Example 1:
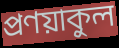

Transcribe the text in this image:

প্রণয়াকুল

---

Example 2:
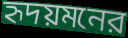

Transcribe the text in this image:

হৃদয়মনের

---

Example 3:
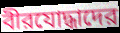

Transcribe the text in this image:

বীরযোদ্ধাদের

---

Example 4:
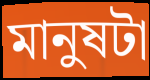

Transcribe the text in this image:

মানুষটা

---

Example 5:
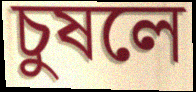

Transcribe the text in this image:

চুষলে